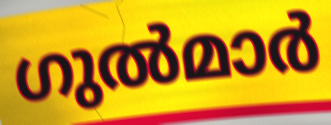
ഗുൽമാർ